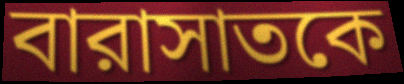
বারাসাতকে